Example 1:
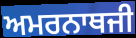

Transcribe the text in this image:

ਅਮਰਨਾਥਜੀ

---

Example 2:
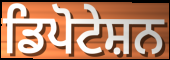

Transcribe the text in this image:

ਡਿਪੋਟੇਸ਼ਨ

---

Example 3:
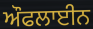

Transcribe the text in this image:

ਔਫਲਾਈਨ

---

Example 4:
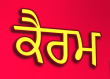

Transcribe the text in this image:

ਕੈਰਮ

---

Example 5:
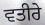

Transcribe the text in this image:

ਵਤੀਰੇ